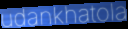
udankhatola